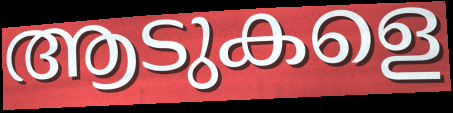
ആടുകളെ